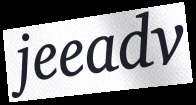
jeeadv